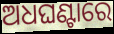
ଅଧଘଣ୍ଟାରେ